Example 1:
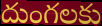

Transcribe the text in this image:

దుంగలకు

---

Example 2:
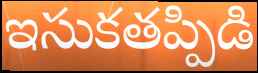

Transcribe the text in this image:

ఇసుకతప్పిడి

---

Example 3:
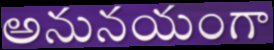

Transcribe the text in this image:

అనునయంగా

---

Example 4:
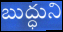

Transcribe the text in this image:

బుద్ధుని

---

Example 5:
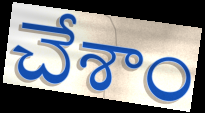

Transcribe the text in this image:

చేశాం